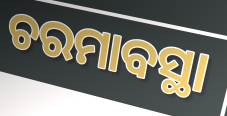
ଚରମାବସ୍ଥା